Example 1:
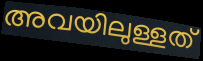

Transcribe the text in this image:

അവയിലുള്ളത്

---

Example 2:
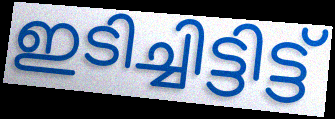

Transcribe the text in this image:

ഇടിച്ചിട്ടിട്ട്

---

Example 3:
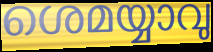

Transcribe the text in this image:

ശെമയ്യാവു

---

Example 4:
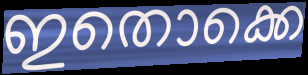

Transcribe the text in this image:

ഇതൊക്കെ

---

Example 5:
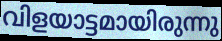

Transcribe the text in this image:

വിളയാട്ടമായിരുന്നു